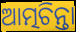
ଆତ୍ମଚିନ୍ତା